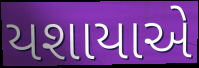
યશાયાએ